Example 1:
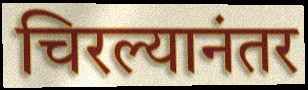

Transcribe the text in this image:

चिरल्यानंतर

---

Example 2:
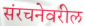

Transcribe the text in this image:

संरचनेवरील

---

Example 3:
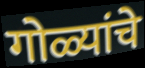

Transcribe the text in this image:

गोळ्यांचे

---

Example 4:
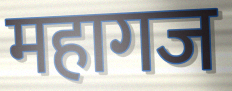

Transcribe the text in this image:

महागज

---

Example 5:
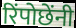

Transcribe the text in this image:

रिंपोछेंनी